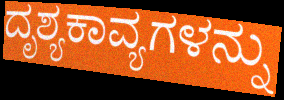
ದೃಶ್ಯಕಾವ್ಯಗಳನ್ನು